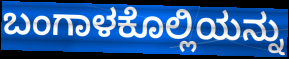
ಬಂಗಾಳಕೊಲ್ಲಿಯನ್ನು